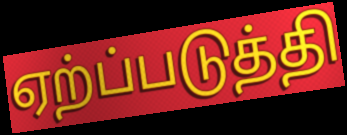
ஏற்ப்படுத்தி